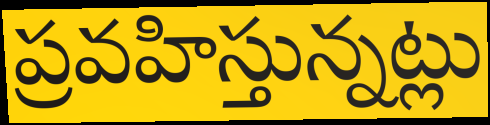
ప్రవహిస్తున్నట్లు